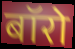
बॉरो